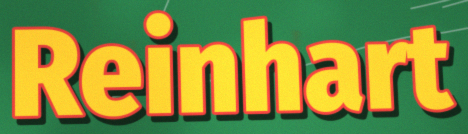
Reinhart